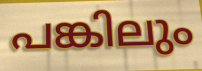
പങ്കിലും